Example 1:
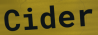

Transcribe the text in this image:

Cider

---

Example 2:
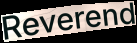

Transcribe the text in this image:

Reverend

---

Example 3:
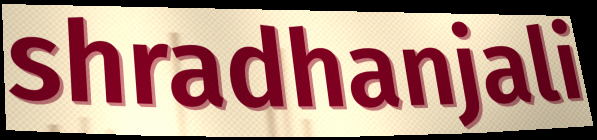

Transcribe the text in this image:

shradhanjali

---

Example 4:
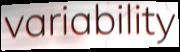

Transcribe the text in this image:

variability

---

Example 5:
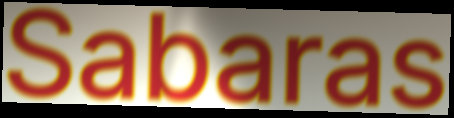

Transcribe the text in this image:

Sabaras